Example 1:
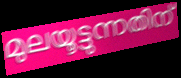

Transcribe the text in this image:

മുലയൂട്ടുന്നതിന്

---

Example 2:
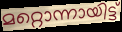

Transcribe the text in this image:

മറ്റൊന്നായിട്ട്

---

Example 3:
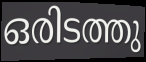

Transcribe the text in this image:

ഒരിടത്തു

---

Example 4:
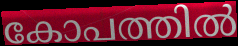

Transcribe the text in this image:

കോപത്തിൽ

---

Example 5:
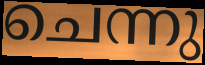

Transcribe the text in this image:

ചെന്നു